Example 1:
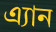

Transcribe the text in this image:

এ্যান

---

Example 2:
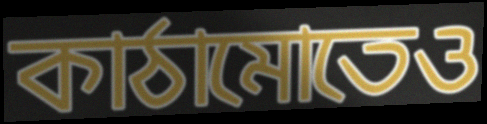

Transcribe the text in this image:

কাঠামোতেও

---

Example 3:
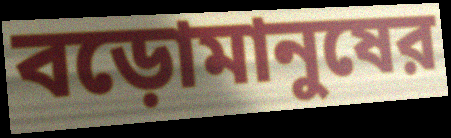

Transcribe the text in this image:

বড়োমানুষের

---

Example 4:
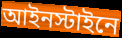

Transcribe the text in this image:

আইনস্টাইনে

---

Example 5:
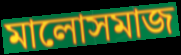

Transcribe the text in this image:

মালোসমাজ